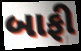
બાફી